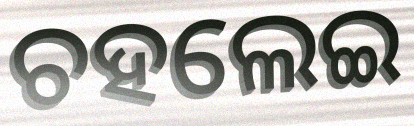
ଚହଲେଇ